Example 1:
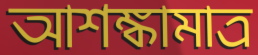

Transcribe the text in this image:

আশঙ্কামাত্র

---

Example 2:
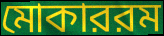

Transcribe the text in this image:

মোকাররম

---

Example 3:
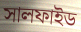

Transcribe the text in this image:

সালফাইড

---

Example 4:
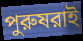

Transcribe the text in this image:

পুরুষরাই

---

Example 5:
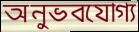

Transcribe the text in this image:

অনুভবযোগ্য